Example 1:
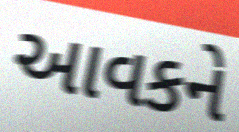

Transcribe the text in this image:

આવકને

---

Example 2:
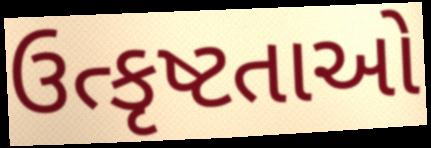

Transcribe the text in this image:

ઉત્કૃષ્ટતાઓ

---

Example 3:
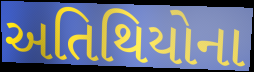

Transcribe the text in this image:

અતિથિયોના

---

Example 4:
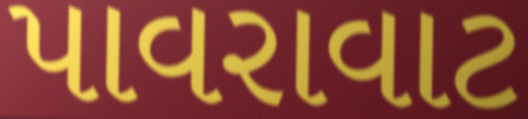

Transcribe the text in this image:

પાવરાવાટ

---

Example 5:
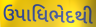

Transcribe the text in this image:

ઉપાધિભેદથી